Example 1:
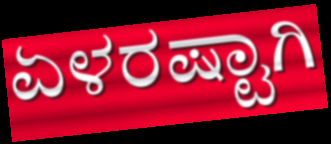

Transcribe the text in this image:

ಏಳರಷ್ಟಾಗಿ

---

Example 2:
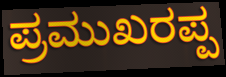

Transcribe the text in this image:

ಪ್ರಮುಖರಪ್ಪ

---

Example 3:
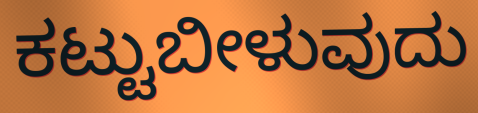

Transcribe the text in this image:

ಕಟ್ಟುಬೀಳುವುದು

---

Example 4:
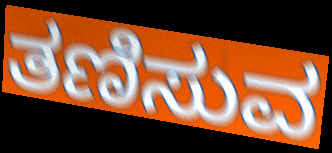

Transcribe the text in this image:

ತಣಿಸುವ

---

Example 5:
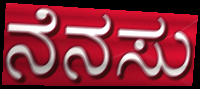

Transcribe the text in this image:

ನೆನಸು